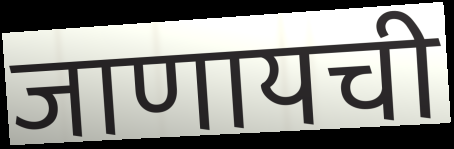
जाणायची